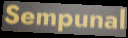
Sempunal